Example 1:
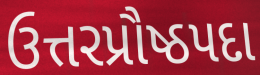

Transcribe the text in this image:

ઉત્તરપ્રૌષ્ઠપદા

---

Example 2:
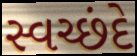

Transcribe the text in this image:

સ્વચ્છંદે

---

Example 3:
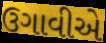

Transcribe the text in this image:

ઉગાવીએ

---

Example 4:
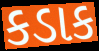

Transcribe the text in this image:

કડાક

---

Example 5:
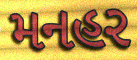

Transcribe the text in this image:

મનહર